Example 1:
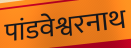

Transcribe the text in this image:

पांडवेश्वरनाथ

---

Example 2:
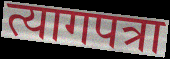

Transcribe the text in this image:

त्यागपत्रा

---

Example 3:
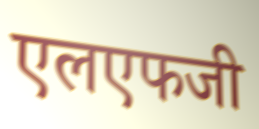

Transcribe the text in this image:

एलएफजी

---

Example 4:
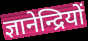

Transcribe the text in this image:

ज्ञानेन्द्रियों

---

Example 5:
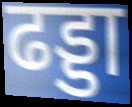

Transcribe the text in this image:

ढड्डा